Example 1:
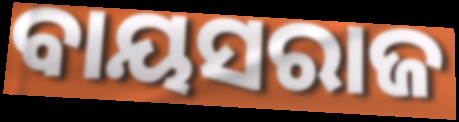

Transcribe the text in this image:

ବାୟସରାଜ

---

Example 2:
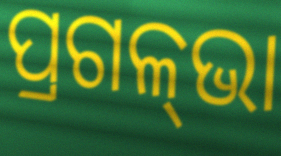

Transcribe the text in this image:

ପ୍ରଗଳ୍‌ଭା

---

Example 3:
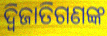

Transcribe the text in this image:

ଦ୍ୱିଜାତିଗଣଙ୍କ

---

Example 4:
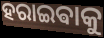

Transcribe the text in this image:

ହରାଇଵାକୁ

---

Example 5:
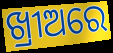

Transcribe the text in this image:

ଖ୍ରୀଅରେ